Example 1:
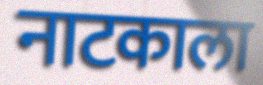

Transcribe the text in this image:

नाटकाला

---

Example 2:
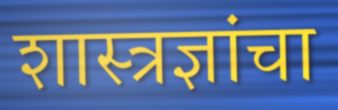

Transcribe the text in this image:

शास्त्रज्ञांचा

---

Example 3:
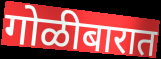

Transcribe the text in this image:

गोळीबारात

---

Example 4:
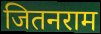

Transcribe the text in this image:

जितनराम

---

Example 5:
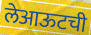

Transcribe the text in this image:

लेआऊटची